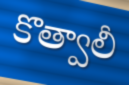
కొత్వాలీ